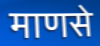
माणसे